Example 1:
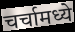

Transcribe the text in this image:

चर्चामध्ये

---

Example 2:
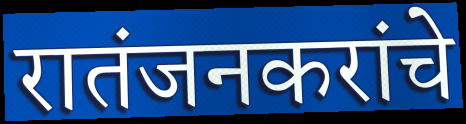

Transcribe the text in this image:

रातंजनकरांचे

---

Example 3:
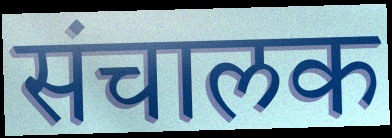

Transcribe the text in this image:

संचालक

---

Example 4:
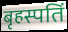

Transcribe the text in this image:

बृहस्पतिं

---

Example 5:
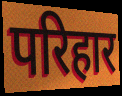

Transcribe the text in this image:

परिहार